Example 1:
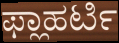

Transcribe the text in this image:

ಫ್ಲಾಹರ್ಟಿ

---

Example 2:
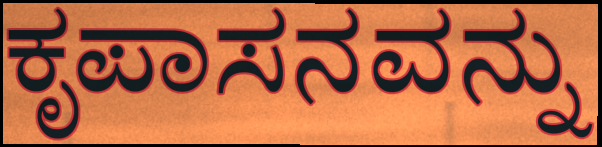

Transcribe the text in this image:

ಕೃಪಾಸನವನ್ನು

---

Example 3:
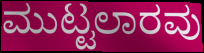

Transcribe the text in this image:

ಮುಟ್ಟಲಾರವು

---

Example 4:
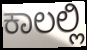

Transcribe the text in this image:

ಕಾಲಲ್ಲಿ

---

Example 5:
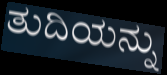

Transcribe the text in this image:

ತುದಿಯನ್ನು